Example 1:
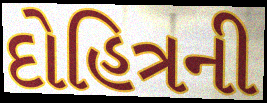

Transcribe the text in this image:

દોહિત્રની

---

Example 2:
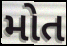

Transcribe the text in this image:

મોત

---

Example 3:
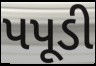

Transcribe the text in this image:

પપૂડી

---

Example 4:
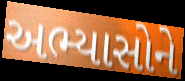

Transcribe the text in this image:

અભ્યાસોને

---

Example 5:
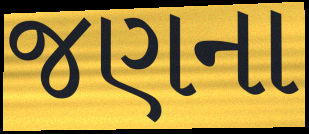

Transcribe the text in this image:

જણના